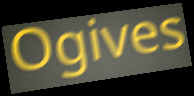
Ogives